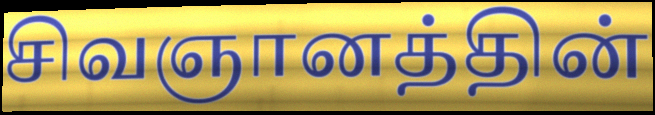
சிவஞானத்தின்